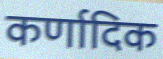
कर्णादिक